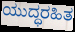
ಯುದ್ಧರಹಿತ